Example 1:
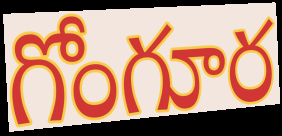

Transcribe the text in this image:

గోంగూర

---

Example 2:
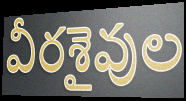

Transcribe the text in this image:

వీరశైవుల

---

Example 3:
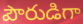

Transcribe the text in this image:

పౌరుడిగా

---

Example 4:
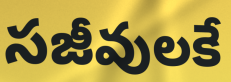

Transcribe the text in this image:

సజీవులకే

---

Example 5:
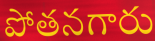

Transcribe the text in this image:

పోతనగారు